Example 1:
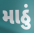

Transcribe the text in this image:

માઠું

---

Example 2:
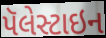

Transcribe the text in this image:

પૅલેસ્ટાઇન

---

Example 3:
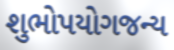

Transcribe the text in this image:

શુભોપયોગજન્ય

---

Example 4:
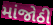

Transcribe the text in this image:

માંજોઠી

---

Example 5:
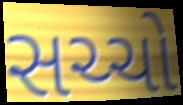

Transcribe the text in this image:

સચ્ચો